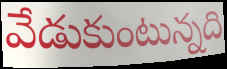
వేడుకుంటున్నది